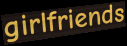
girlfriends